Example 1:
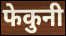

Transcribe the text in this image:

फेकुनी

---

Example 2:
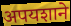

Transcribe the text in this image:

अपयशाने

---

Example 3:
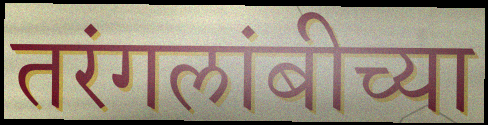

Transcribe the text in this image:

तरंगलांबीच्या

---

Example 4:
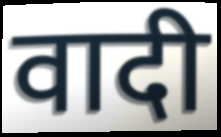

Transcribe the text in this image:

वादी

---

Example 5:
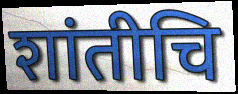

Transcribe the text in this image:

शांतीचि